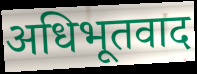
अधिभूतवाद